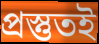
প্রস্তুতই